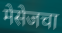
मेसेजचा